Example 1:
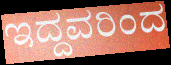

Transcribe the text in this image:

ಇದ್ದವರಿಂದ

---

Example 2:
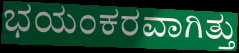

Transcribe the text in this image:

ಭಯಂಕರವಾಗಿತ್ತು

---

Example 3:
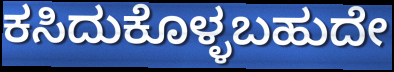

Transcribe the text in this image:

ಕಸಿದುಕೊಳ್ಳಬಹುದೇ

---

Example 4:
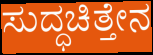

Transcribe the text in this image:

ಸುದ್ಧಚಿತ್ತೇನ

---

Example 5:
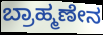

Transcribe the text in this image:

ಬ್ರಾಹ್ಮಣೇನ